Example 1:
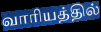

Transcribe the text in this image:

வாரியத்தில்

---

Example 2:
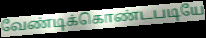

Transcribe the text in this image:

வேண்டிக்கொண்டபடியே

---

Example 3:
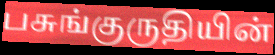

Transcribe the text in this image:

பசுங்குருதியின்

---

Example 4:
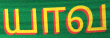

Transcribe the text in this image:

யாவ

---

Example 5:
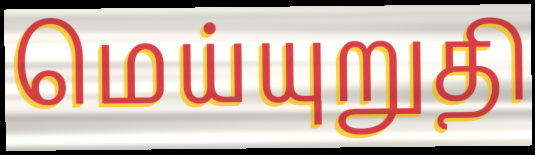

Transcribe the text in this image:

மெய்யுறுதி